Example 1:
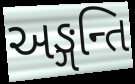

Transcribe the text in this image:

અઙ્ગન્તિ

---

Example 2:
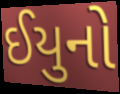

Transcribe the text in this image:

ઈયુનો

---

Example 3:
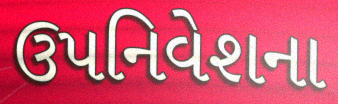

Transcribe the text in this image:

ઉપનિવેશના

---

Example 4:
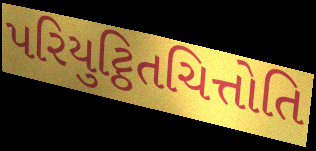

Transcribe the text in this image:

પરિયુટ્ઠિતચિત્તોતિ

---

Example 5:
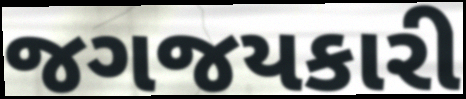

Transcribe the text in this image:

જગજયકારી